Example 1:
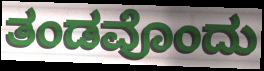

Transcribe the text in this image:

ತಂಡವೊಂದು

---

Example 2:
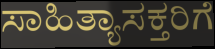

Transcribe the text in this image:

ಸಾಹಿತ್ಯಾಸಕ್ತರಿಗೆ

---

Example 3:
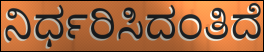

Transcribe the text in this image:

ನಿರ್ಧರಿಸಿದಂತಿದೆ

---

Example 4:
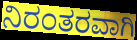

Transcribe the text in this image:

ನಿರಂತರವಾಗಿ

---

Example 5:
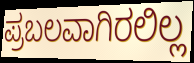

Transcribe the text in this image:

ಪ್ರಬಲವಾಗಿರಲಿಲ್ಲ